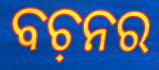
ବଚ଼ନର